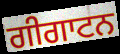
ਗੀਗਾਟਨ